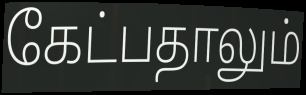
கேட்பதாலும்